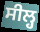
ਸੀਲ੍ਹ